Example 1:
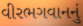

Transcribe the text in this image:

વીરભગવાનનું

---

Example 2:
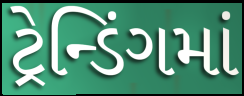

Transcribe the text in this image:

ટ્રેન્ડિંગમાં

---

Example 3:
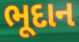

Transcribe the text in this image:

ભૂદાન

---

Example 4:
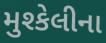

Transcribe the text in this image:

મુશ્કેલીના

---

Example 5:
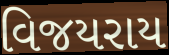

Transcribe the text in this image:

વિજયરાય